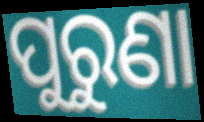
ପୁରୁଣା